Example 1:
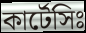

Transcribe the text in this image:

কার্টেসিঃ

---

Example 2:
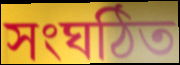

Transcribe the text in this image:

সংঘঠিত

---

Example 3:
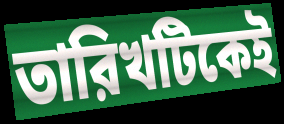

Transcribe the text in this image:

তারিখটিকেই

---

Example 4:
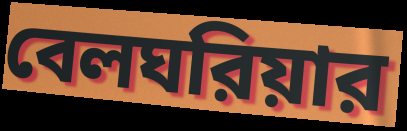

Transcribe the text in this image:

বেলঘরিয়ার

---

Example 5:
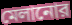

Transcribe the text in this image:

মেলানোর